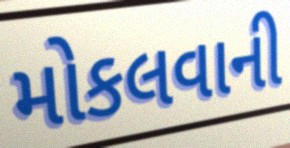
મોકલવાની